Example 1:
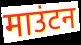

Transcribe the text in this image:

माउंटन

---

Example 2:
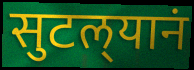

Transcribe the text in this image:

सुटल्यानं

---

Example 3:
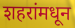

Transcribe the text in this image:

शहरांमधून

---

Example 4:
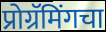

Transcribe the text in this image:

प्रोग्रॅमिंगचा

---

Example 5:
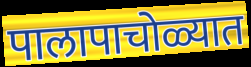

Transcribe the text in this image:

पालापाचोळ्यात